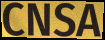
CNSA